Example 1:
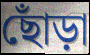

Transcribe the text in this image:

ছোঁড়া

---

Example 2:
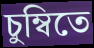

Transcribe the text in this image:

চুম্বিতে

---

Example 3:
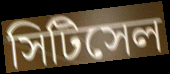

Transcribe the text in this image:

সিটিসেল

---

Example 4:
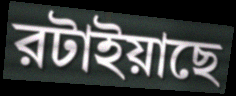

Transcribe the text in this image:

রটাইয়াছে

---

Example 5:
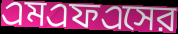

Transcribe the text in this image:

এমএফএসের